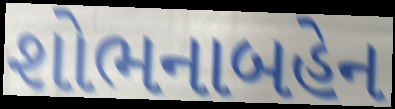
શોભનાબહેન